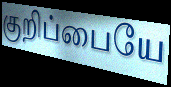
குறிப்பையே